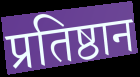
प्रतिष्ठान